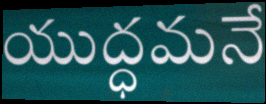
యుద్ధమనే